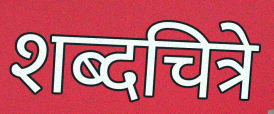
शब्दचित्रे